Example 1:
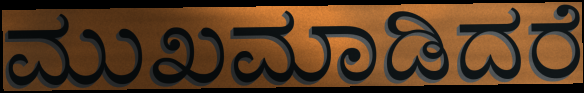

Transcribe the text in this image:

ಮುಖಮಾಡಿದರೆ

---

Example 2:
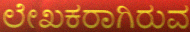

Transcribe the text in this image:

ಲೇಖಕರಾಗಿರುವ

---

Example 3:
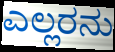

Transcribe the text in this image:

ಎಲ್ಲರನು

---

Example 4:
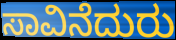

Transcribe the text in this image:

ಸಾವಿನೆದುರು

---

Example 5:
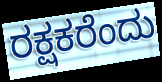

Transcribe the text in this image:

ರಕ್ಷಕರೆಂದು